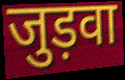
जुड़वा